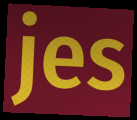
jes